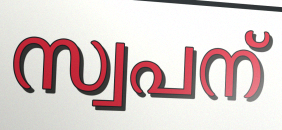
സ്വപന്